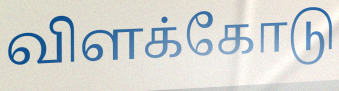
விளக்கோடு